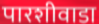
पारशीवाडा